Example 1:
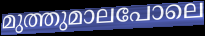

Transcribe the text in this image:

മുത്തുമാലപോലെ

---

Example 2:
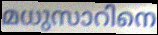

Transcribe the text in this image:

മധുസാറിനെ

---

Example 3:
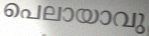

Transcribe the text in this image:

പെലായാവു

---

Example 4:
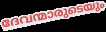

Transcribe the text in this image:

ദേവന്മാരുടെയും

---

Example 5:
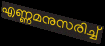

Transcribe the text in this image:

എണ്ണമനുസരിച്ച്